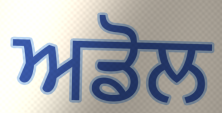
ਅਡੋਲ